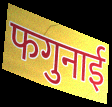
फगुनाई